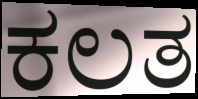
ಕಲತ